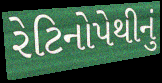
રેટિનોપેથીનું